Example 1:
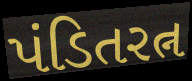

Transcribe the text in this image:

પંડિતરત્ન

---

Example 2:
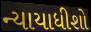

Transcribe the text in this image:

ન્યાયાધીશો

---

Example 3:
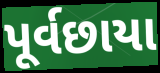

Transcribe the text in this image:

પૂર્વછાયા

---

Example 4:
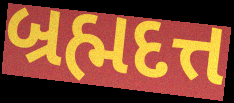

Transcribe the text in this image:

બ્રહ્મદત્ત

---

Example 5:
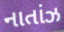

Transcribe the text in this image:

નાતાંઝ